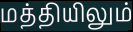
மத்தியிலும்